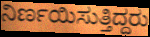
ನಿರ್ಣಯಿಸುತ್ತಿದ್ದರು